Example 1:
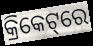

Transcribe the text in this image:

କ୍ରିକେଟ୍‌ରେ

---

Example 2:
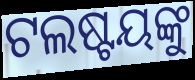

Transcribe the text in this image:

ଟଲଷ୍ଟୟଙ୍କୁ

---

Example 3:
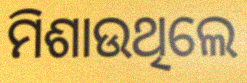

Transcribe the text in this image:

ମିଶାଉଥିଲେ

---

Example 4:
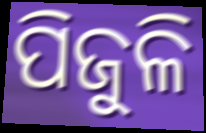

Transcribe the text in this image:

ପିଜୁଳି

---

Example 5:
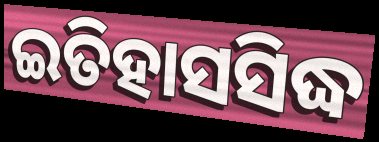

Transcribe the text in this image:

ଇତିହାସସିଦ୍ଧ